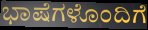
ಭಾಷೆಗಳೊಂದಿಗೆ